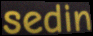
sedin